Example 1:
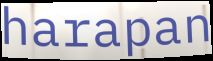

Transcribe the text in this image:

harapan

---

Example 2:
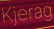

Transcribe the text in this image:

Kjerag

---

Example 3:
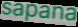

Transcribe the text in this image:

sapana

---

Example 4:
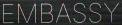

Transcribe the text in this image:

EMBASSY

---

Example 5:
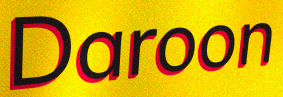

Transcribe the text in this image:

Daroon